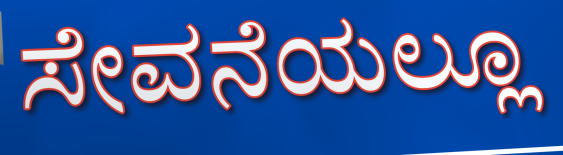
ಸೇವನೆಯಲ್ಲೂ